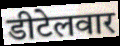
डीटेलवार